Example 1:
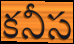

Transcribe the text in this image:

కనీస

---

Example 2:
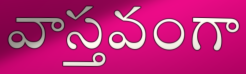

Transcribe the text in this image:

వాస్తవంగా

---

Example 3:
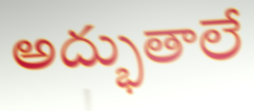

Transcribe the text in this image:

అద్భుతాలే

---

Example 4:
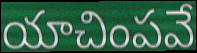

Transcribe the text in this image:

యాచింపవే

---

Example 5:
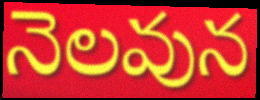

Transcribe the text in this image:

నెలవున